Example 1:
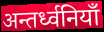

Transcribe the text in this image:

अन्तर्ध्वनियाँ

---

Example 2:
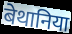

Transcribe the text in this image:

बेथानिया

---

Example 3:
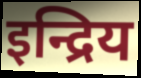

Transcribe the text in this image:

इन्द्रिय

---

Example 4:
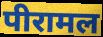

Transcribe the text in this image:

पीरामल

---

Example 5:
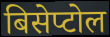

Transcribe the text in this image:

बिसेप्टोल